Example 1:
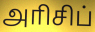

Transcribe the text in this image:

அரிசிப்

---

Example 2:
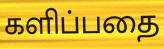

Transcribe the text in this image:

களிப்பதை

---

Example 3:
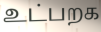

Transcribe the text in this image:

உட்பறக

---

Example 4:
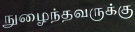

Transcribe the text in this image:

நுழைந்தவருக்கு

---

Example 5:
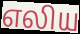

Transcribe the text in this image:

எலிய